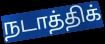
நடாத்திக்